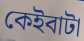
কেইবাটা